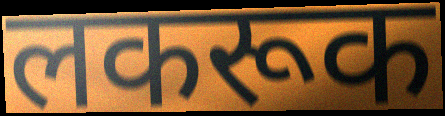
लकरूक